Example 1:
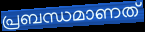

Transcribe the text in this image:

പ്രബന്ധമാണത്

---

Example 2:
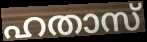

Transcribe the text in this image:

ഹതാസ്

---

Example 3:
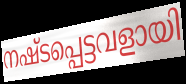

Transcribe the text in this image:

നഷ്ടപ്പെട്ടവളായി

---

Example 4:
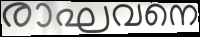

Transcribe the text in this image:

രാഘവനെ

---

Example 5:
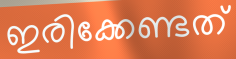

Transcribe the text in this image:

ഇരിക്കേണ്ടത്